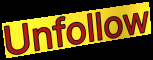
Unfollow